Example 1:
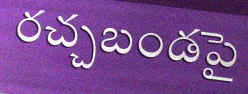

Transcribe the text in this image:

రచ్చబండపై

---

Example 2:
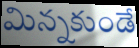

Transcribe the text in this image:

మిన్నకుండే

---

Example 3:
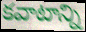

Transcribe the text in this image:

కవాటాన్ని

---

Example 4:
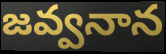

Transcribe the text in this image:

జవ్వనాన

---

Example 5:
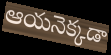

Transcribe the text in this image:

ఆయనెక్కడా